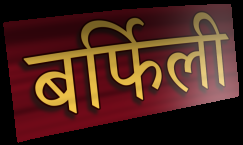
बर्फिली